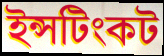
ইন্সটিংকট